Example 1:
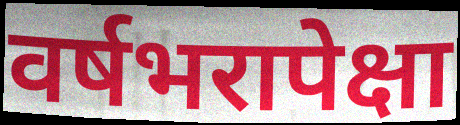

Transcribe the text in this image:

वर्षभरापेक्षा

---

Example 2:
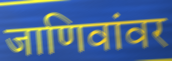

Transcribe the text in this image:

जाणिवांवर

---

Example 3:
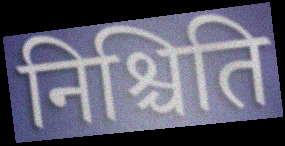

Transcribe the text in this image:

निश्चिति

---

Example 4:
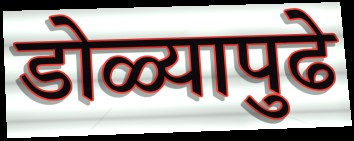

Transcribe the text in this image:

डोळ्यापुढे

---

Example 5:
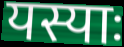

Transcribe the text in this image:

यस्याः